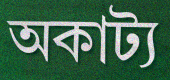
অকাট্য